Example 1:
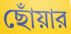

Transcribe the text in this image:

ছোঁয়ার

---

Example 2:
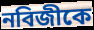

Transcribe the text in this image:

নবিজীকে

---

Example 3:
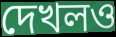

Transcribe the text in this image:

দেখলও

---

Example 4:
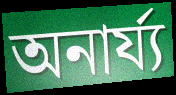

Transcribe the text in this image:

অনার্য্য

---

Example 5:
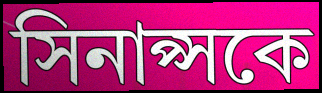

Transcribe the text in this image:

সিনাপ্সকে